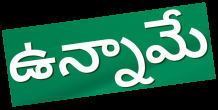
ఉన్నామే